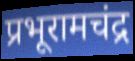
प्रभूरामचंद्र